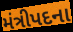
મંત્રીપદના